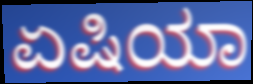
ಏಷಿಯಾ